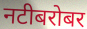
नटीबरोबर